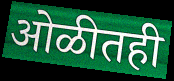
ओळीतही